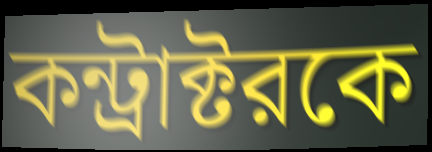
কন্ট্রাক্টরকে